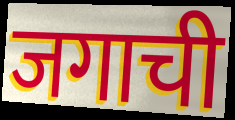
जगाची